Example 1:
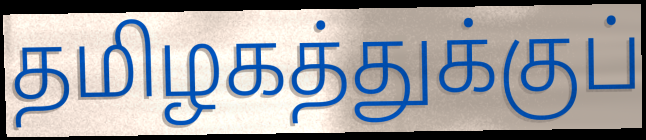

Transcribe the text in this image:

தமிழகத்துக்குப்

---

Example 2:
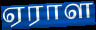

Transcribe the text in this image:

ஏராள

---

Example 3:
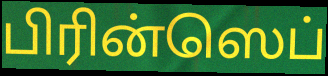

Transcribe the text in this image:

பிரின்ஸெப்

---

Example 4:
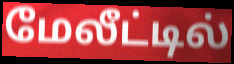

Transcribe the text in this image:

மேலீட்டில்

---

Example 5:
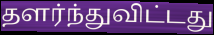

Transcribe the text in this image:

தளர்ந்துவிட்டது